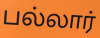
பல்லார்